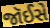
જૉઈસે